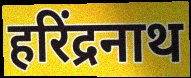
हरिंद्रनाथ